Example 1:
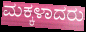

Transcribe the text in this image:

ಮಕ್ಕಳಾದರು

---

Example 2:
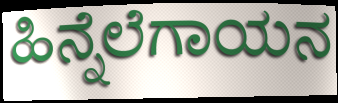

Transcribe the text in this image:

ಹಿನ್ನೆಲೆಗಾಯನ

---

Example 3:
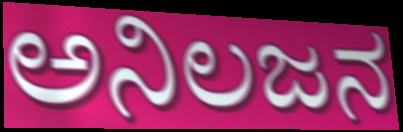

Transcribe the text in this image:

ಅನಿಲಜನ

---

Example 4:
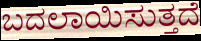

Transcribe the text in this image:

ಬದಲಾಯಿಸುತ್ತದೆ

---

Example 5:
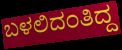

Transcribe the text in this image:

ಬಳಲಿದಂತಿದ್ದ